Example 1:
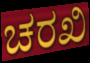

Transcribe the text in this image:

ಚರಖಿ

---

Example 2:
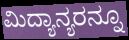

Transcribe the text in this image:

ಮಿದ್ಯಾನ್ಯರನ್ನೂ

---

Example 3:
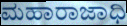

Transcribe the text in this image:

ಮಹಾರಾಜಾಧಿ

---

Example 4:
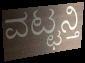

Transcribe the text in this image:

ವಟ್ಟನ್ತಿ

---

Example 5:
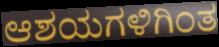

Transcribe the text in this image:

ಆಶಯಗಳಿಗಿಂತ